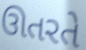
ઊતરતે